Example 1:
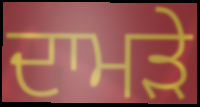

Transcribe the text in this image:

ਦਾਮੜੇ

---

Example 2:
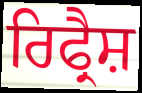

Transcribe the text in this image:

ਰਿਫ੍ਰੈਸ਼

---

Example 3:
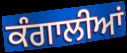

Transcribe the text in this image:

ਕੰਗਾਲੀਆਂ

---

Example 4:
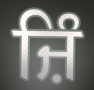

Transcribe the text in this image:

ਜ਼ਿੰ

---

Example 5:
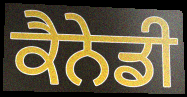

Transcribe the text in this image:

ਕੈਨੇਡੀ